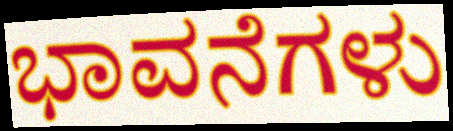
ಭಾವನೆಗಳು